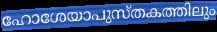
ഹോശേയാപുസ്തകത്തിലും